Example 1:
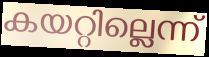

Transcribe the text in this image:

കയറ്റില്ലെന്ന്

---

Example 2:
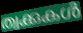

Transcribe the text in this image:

ത്വക്കുകൾ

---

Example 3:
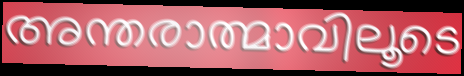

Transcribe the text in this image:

അന്തരാത്മാവിലൂടെ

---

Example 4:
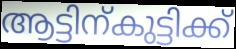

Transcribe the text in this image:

ആട്ടിന്കുട്ടിക്ക്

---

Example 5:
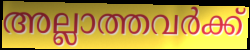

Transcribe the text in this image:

അല്ലാത്തവർക്ക്